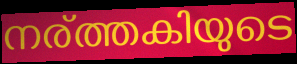
നര്ത്തകിയുടെ